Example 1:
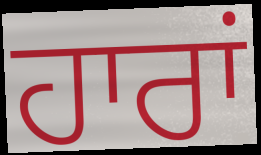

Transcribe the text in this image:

ਹਾਰਾਂ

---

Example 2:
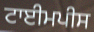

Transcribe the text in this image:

ਟਾਈਮਪੀਸ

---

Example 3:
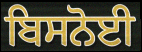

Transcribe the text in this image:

ਬਿਸਨੋਈ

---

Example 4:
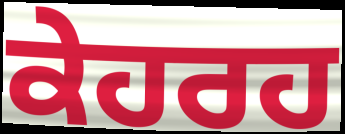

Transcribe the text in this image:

ਕੇਹਰਹ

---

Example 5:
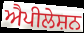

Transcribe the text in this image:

ਐਪੀਲੇਸ਼ਨ